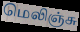
மெலிஞ்சு